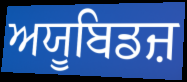
ਅਯੂਬਿਡਜ਼